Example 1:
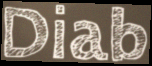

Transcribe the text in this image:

Diab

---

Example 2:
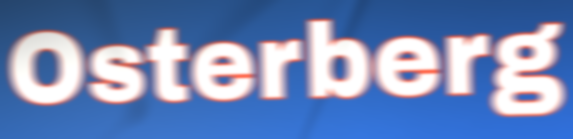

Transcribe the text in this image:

Osterberg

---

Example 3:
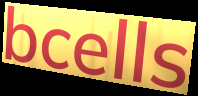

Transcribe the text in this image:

bcells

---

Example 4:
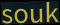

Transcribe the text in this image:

souk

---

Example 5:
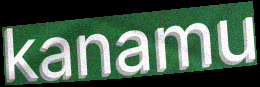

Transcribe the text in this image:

kanamu